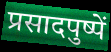
प्रसादपुष्पें